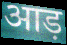
आड़